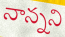
నాన్నని